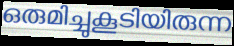
ഒരുമിച്ചുകൂടിയിരുന്ന